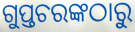
ଗୁପ୍ତଚରଙ୍କଠାରୁ